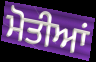
ਮੋਤੀਆਂ